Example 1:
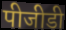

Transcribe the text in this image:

पीजीडी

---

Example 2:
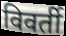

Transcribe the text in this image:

विवर्ती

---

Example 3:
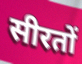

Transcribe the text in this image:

सीरतों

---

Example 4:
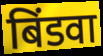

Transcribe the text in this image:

बिंडवा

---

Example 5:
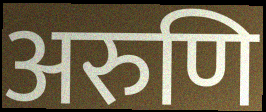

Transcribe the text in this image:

अरुणि